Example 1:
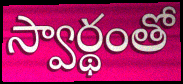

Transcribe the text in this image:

స్వార్థంతో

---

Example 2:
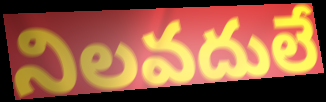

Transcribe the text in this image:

నిలవదులే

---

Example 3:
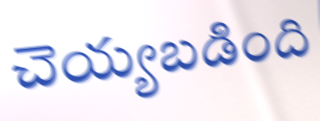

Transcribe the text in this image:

చెయ్యబడింది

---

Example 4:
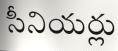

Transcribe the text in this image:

సీనియర్లు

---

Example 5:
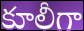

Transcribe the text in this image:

కూలీగా